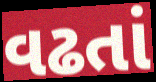
વઢતાં